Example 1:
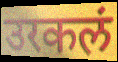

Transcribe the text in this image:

उरकलं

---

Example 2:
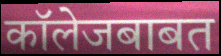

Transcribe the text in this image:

कॉलेजबाबत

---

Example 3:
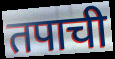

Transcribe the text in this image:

तपाची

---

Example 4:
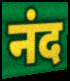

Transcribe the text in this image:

नंद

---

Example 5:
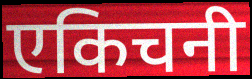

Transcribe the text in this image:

एकिचनी